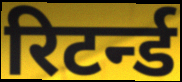
रिटर्न्ड